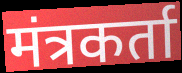
मंत्रकर्ता